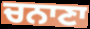
ਚਨਾਣਾ